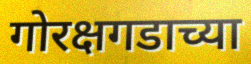
गोरक्षगडाच्या